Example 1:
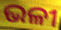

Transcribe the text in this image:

ଭଳୀ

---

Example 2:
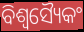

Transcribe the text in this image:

ବିଶ୍ୱସ୍ୟୈକଂ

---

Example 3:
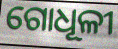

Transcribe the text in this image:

ଗୋଧୂଳୀ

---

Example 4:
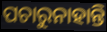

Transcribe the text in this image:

ପଚାରୁନାହାନ୍ତି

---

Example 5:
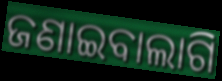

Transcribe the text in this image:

ଜଣାଇବାଲାଗି